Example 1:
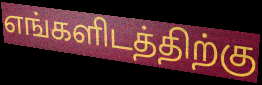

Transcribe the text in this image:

எங்களிடத்திற்கு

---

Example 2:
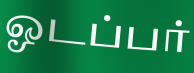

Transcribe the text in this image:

ஓடப்பர்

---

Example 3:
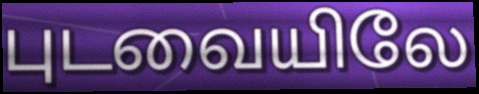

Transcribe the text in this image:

புடவையிலே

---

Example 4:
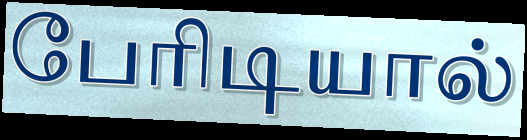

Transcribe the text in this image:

பேரிடியால்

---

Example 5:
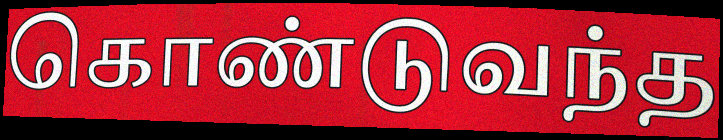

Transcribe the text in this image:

கொண்டுவந்த